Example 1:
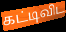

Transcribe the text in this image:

கட்டிவிட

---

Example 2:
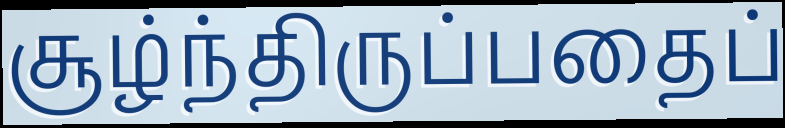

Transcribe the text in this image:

சூழ்ந்திருப்பதைப்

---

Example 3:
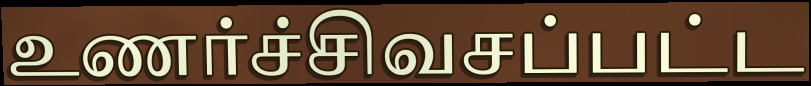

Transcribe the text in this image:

உணர்ச்சிவசப்பட்ட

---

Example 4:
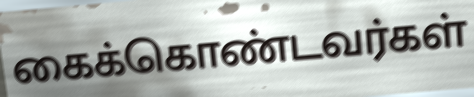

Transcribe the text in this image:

கைக்கொண்டவர்கள்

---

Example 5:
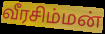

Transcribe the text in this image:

வீரசிம்மன்